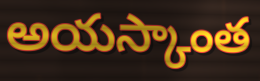
అయస్కాంత